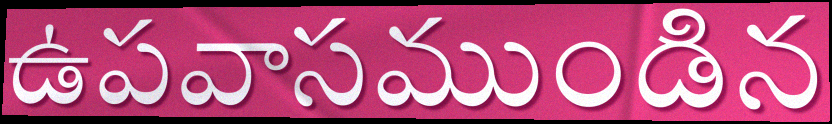
ఉపవాసముండిన